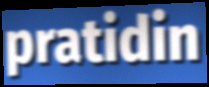
pratidin